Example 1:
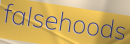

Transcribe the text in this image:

falsehoods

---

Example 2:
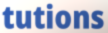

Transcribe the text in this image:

tutions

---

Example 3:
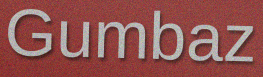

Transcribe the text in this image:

Gumbaz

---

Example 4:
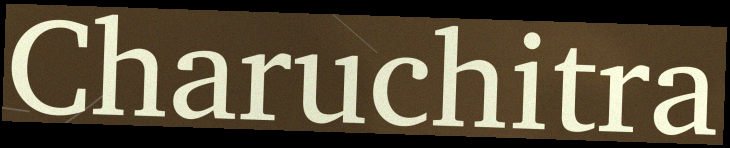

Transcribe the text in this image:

Charuchitra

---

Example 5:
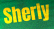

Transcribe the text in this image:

Sherly